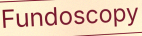
Fundoscopy